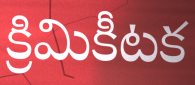
క్రిమికీటక